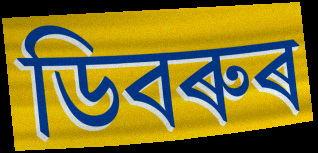
ডিবৰুৰ